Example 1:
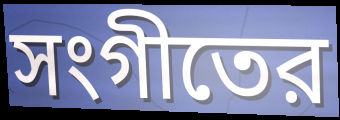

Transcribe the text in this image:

সংগীতের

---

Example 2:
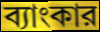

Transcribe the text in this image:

ব্যাংকার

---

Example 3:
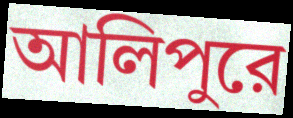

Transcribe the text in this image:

আলিপুরে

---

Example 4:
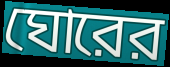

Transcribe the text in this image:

ঘোরের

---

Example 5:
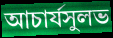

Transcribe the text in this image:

আচার্যসুলভ